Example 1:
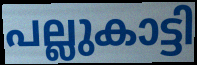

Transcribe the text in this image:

പല്ലുകാട്ടി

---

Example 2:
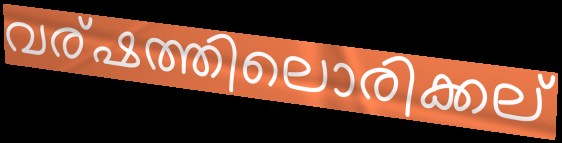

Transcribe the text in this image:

വര്ഷത്തിലൊരിക്കല്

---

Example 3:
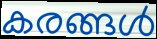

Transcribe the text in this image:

കരങ്ങൾ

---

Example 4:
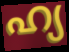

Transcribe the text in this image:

ഹ്യ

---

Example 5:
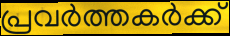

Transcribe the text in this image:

പ്രവർത്തകർക്ക്